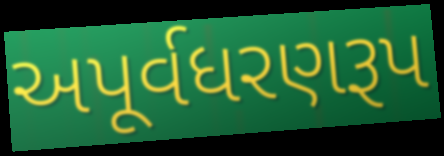
અપૂર્વધરણરૂપ